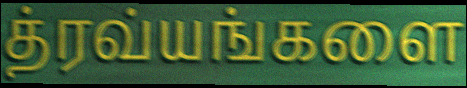
த்ரவ்யங்களை